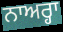
ਨਾਅਰ੍ਹਾ